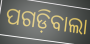
ପଗଡ଼ିବାଲା